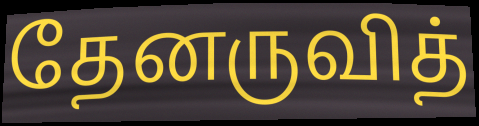
தேனருவித்